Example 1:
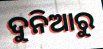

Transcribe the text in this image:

ଦୁନିଆରୁ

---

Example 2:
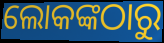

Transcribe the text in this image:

ଲୋକଙ୍କଠାରୁ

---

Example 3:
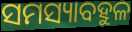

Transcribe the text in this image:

ସମସ୍ୟାବହୁଳ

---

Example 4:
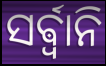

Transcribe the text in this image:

ସର୍ଵ୍ଵାନି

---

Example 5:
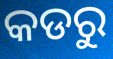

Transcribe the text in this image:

କଡରୁ